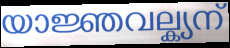
യാജ്ഞവല്ക്യന്